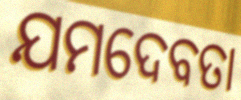
ଯମଦେବତା